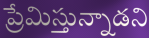
ప్రేమిస్తున్నాడని